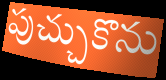
పుచ్చుకొను